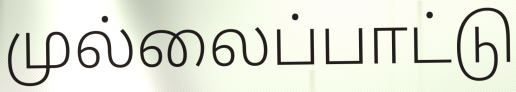
முல்லைப்பாட்டு